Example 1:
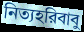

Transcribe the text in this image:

নিত্যহরিবাবু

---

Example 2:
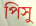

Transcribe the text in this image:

পিসু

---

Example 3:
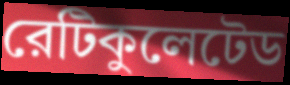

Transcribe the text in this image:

রেটিকুলেটেড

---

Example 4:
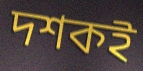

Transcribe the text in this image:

দশকই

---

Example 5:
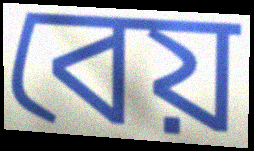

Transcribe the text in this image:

বেয়